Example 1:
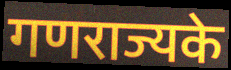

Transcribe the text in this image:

गणराज्यके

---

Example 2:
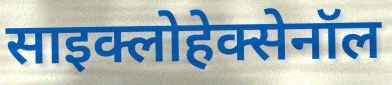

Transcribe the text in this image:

साइक्लोहेक्सेनॉल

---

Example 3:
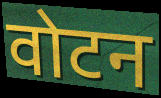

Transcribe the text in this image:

वोटन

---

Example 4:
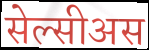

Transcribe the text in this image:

सेल्सीअस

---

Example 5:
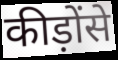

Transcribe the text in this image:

कीड़ोंसे